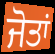
ਜੋਤਾਂ